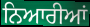
ਨਿਆਰੀਆਂ